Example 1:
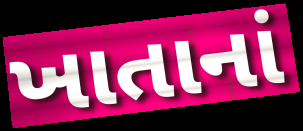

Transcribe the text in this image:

ખાતાનાં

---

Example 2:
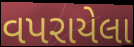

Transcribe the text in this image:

વપરાયેલા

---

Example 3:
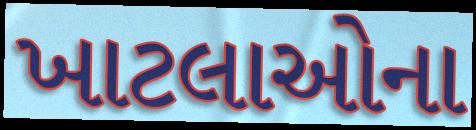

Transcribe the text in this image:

ખાટલાઓના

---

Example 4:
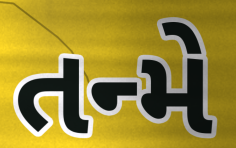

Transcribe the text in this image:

તન્મે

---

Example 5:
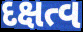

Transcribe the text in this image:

દક્ષત્વ